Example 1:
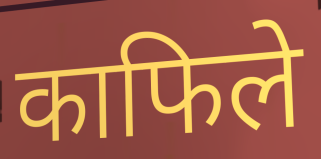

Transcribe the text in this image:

काफिले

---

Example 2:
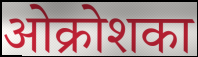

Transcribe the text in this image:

ओक्रोशका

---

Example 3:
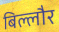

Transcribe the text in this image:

बिल्लौर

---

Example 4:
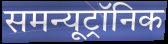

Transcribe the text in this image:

समन्यूट्रॉनिक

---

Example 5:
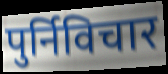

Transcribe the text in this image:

पुर्निविचार